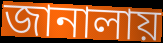
জানালায়